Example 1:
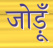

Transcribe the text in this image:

जोड़ूँ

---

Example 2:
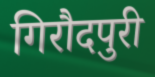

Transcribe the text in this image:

गिरौदपुरी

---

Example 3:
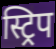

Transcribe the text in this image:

स्ट्रिप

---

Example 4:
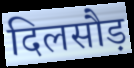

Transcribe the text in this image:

दिलसौड़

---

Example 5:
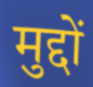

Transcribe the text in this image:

मुद्दों